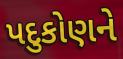
પદુકોણને